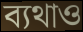
ব্যথাও